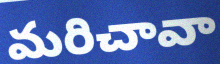
మరిచావా